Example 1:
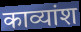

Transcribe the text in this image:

काव्यांश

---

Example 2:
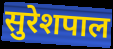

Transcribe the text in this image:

सुरेशपाल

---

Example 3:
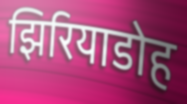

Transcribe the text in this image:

झिरियाडोह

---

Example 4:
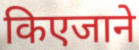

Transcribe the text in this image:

किएजाने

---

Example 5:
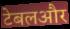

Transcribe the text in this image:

टेबलऔर